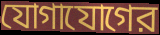
যোগাযোগের